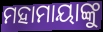
ମହାମାୟାଙ୍କୁ